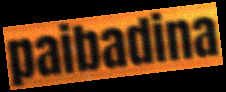
paibadina